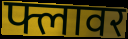
फ्लावर